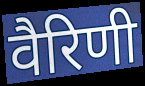
वैरिणी